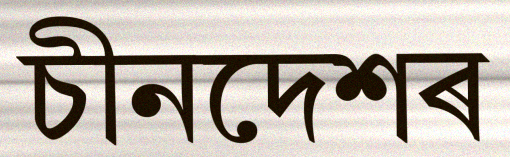
চীনদেশৰ